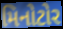
મિનોટોર